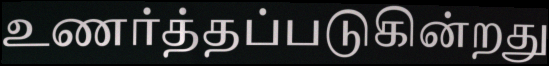
உணர்த்தப்படுகின்றது